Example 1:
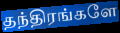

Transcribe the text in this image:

தந்திரங்களே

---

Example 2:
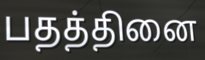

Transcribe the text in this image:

பதத்தினை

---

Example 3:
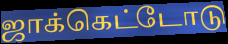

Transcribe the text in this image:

ஜாக்கெட்டோடு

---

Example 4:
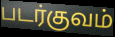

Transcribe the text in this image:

படர்குவம்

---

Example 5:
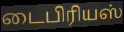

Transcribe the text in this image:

டைபிரியஸ்